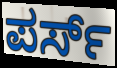
ಪರ್ಸ್